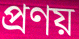
প্ৰণয়